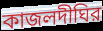
কাজলদীঘির